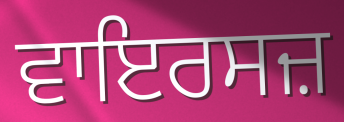
ਵਾਇਰਸਜ਼